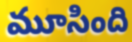
మూసింది